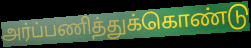
அர்ப்பணித்துக்கொண்டு